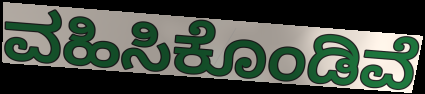
ವಹಿಸಿಕೊಂಡಿವೆ